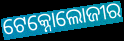
ଟେକ୍ନୋଲୋଜୀର